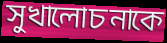
সুখালোচনাকে